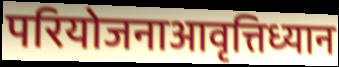
परियोजनाआवृत्तिध्यान